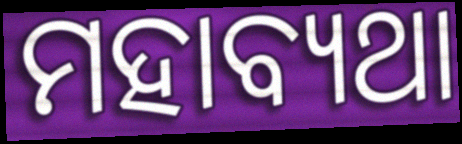
ମହାବ୍ୟଥା